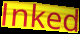
Inked